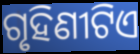
ଗୃହିଣୀଟିଏ